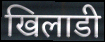
खिलाडी